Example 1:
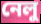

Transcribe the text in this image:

নেলু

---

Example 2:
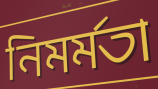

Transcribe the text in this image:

নিমর্মতা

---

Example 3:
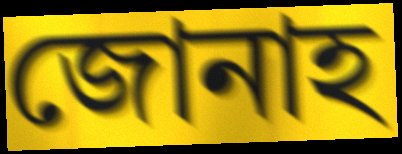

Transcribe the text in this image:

জোনাহ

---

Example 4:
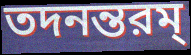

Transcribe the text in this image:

তদনন্তরম্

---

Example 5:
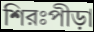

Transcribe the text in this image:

শিরঃপীড়া